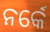
ନର୍କେ